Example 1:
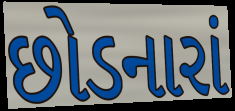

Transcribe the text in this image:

છોડનારાં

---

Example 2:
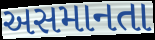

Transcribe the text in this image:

અસમાનતા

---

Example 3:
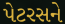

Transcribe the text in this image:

પેટરસને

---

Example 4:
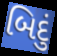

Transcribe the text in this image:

બિદું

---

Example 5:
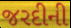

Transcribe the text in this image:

જરદીની